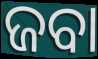
ଜବା